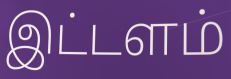
இட்டளம்